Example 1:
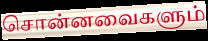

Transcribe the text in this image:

சொன்னவைகளும்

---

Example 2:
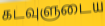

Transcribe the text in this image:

கடவுளுடைய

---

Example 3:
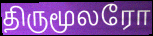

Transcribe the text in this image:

திருமூலரோ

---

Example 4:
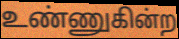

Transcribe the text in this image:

உண்ணுகின்ற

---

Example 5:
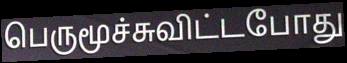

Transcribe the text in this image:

பெருமூச்சுவிட்டபோது